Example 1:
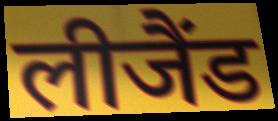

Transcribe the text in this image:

लीजैंड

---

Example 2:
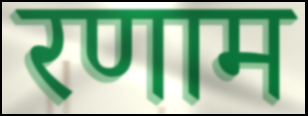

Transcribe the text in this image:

रणाम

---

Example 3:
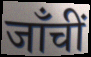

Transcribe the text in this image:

जाँचीं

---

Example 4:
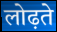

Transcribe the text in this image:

लोढ़ते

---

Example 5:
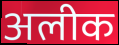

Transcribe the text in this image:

अलीक